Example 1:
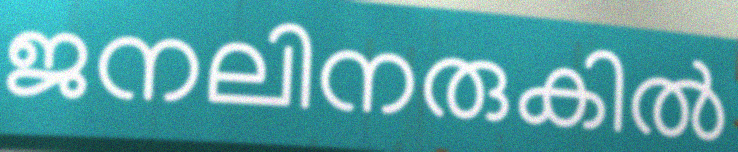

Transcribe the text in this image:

ജനലിനരുകിൽ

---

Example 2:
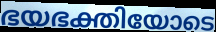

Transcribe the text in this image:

ഭയഭക്തിയോടെ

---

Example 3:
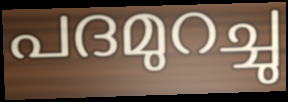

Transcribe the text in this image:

പദമുറച്ചു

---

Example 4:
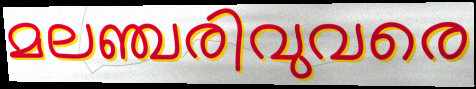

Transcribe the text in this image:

മലഞ്ചരിവുവരെ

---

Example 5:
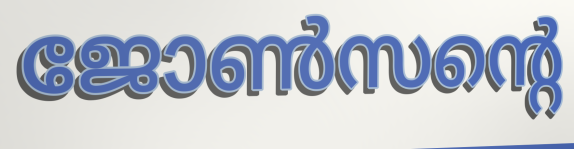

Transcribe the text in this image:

ജോൺസന്റെ